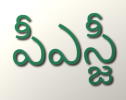
పీఎస్జీ